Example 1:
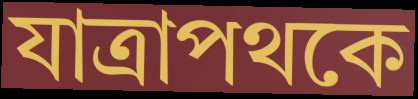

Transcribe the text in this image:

যাত্রাপথকে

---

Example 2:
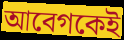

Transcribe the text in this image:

আবেগকেই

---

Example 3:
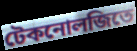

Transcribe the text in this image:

টেকনোলজিতে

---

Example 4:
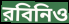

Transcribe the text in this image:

রবিনিও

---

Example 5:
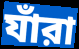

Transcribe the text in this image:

যাঁরা